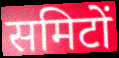
समिटों